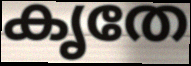
കൃതേ